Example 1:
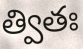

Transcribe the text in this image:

త్వితః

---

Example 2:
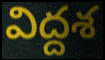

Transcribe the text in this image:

విద్దశ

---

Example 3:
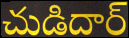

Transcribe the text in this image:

చుడిదార్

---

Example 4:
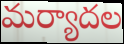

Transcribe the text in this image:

మర్యాదల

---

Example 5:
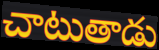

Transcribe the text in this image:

చాటుతాడు